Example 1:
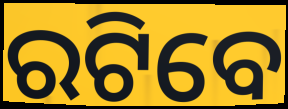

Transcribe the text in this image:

ରଟିବେ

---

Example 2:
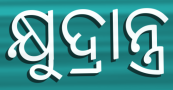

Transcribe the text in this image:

କ୍ଷୁଦ୍ରାନ୍ତ୍ର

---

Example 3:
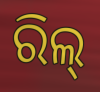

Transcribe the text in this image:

ରିଲ୍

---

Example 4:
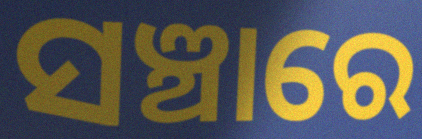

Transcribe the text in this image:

ସଞ୍ଚାରେ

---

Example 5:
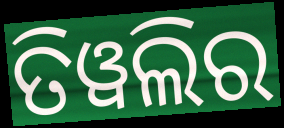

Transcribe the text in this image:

ତିୱଲିର